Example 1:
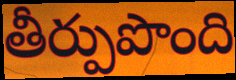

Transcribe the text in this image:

తీర్పుపొంది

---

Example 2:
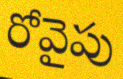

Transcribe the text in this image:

రోవైపు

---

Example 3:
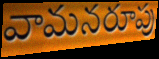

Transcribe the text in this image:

వామనరూపు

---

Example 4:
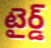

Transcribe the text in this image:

టైర్డ్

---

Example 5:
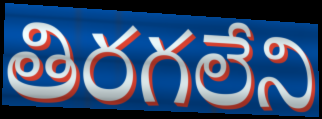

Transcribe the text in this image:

తిరగలేని